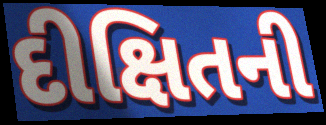
દીક્ષિતની